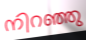
നിറഞ്ഞു